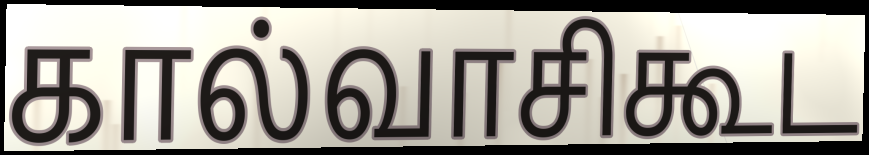
கால்வாசிகூட